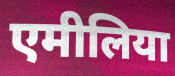
एमीलिया